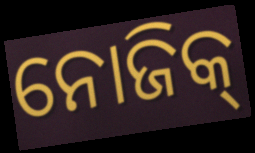
ନୋଜିକ୍